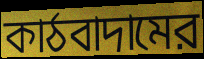
কাঠবাদামের